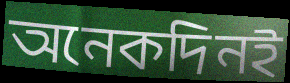
অনেকদিনই